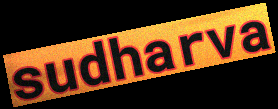
sudharva